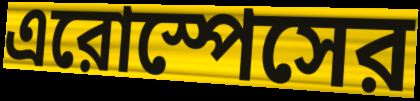
এরোস্পেসের